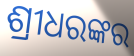
ଶ୍ରୀଧରଙ୍କର